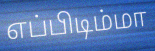
எப்பிடிம்மா